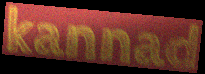
kannad